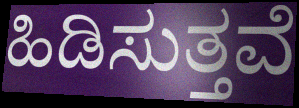
ಹಿಡಿಸುತ್ತವೆ